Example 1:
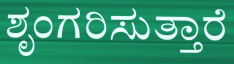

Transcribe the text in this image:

ಶೃಂಗರಿಸುತ್ತಾರೆ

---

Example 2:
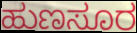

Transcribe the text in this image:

ಹುಣಸೂರ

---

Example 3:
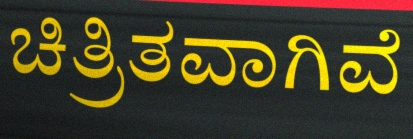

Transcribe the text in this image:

ಚಿತ್ರಿತವಾಗಿವೆ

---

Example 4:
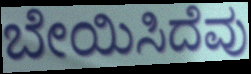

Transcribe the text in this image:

ಬೇಯಿಸಿದೆವು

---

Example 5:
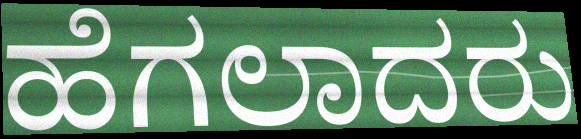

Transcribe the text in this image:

ಹೆಗಲಾದರು